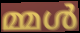
മ്മൾ